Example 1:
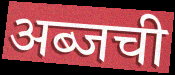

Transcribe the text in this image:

अब्जची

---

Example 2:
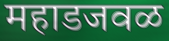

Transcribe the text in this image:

महाडजवळ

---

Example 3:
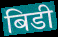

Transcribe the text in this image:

बिडी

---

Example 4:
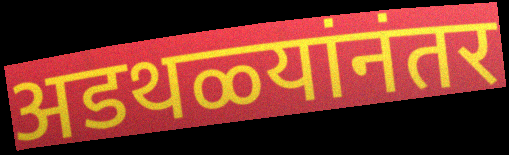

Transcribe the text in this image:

अडथळ्यांनंतर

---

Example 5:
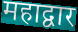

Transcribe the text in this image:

महाद्वार